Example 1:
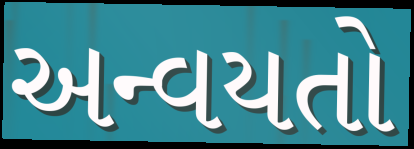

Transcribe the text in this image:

અન્વયતો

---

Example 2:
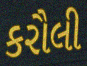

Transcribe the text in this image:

કરૌલી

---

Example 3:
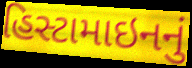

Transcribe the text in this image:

હિસ્ટામાઇનનું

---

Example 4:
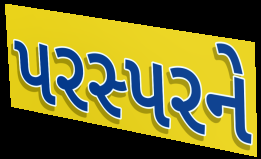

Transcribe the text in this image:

પરસ્પરને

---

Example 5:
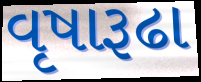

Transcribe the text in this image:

વૃષારૂઢા